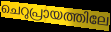
ചെറുപ്രായത്തിലേ